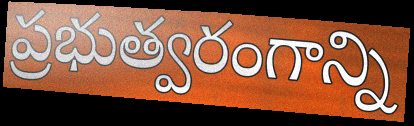
ప్రభుత్వరంగాన్ని